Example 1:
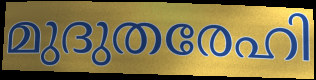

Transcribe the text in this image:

മുദുതരേഹി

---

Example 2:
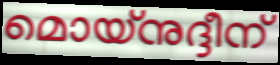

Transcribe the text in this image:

മൊയ്നുദ്ദീന്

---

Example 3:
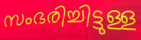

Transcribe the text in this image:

സംഭരിച്ചിട്ടുള്ള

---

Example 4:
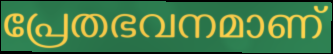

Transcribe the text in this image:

പ്രേതഭവനമാണ്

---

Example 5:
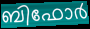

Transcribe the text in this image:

ബിഫോർ